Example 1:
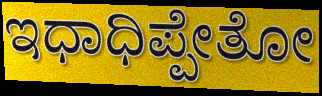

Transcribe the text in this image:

ಇಧಾಧಿಪ್ಪೇತೋ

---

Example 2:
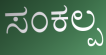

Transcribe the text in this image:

ಸಂಕಲ್ಪ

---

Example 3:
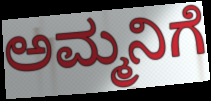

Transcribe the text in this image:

ಅಮ್ಮನಿಗೆ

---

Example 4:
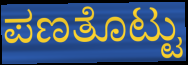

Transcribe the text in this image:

ಪಣತೊಟ್ಟು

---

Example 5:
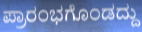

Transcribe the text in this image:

ಪ್ರಾರಂಭಗೊಂಡದ್ದು